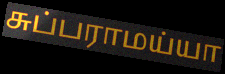
சுப்பராமய்யா